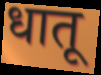
धातू